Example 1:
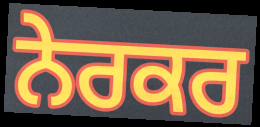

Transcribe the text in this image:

ਨੇਰਕਰ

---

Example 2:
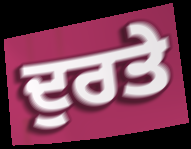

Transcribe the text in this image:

ਦੁਰਤੇ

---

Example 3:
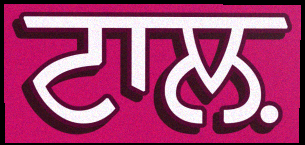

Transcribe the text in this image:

ਟਾਲ਼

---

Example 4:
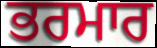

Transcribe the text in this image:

ਭਰਮਾਰ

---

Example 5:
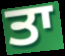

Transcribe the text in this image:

ਤਾ